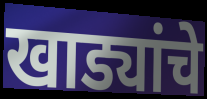
खाड्यांचे